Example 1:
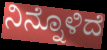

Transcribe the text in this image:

ನಿನ್ನೊಳಿದೆ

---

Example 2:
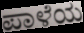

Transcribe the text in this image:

ಪಾಳೆಯ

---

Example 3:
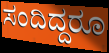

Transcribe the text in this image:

ಸಂದಿದ್ದರೂ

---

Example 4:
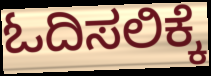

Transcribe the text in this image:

ಓದಿಸಲಿಕ್ಕೆ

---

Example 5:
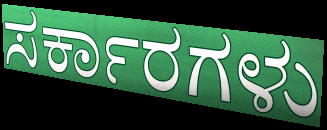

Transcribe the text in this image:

ಸರ್ಕಾರಗಳು